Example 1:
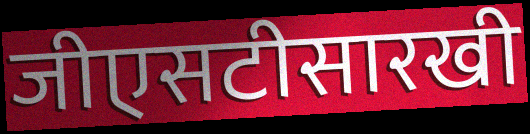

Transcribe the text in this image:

जीएसटीसारखी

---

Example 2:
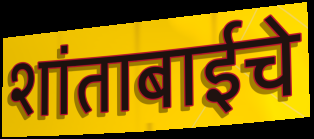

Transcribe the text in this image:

शांताबाईचे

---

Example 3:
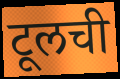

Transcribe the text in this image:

टूलची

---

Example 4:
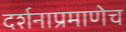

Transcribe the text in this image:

दर्शनाप्रमाणेच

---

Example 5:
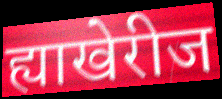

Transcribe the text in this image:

ह्याखेरीज